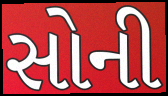
સોની